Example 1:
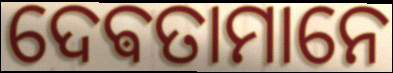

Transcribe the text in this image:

ଦେଵତାମାନେ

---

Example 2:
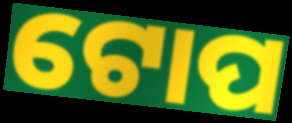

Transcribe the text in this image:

ଟୋପ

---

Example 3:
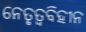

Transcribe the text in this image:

ନେତୃତ୍ୱବିହୀନ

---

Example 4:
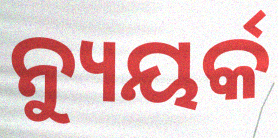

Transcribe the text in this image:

ନ୍ୟୁୟର୍କ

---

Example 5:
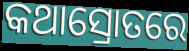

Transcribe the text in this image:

କଥାସ୍ରୋତରେ